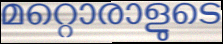
മറ്റൊരാളുടെ